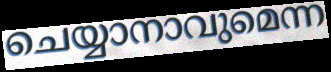
ചെയ്യാനാവുമെന്ന